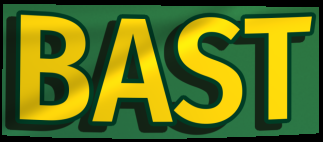
BAST